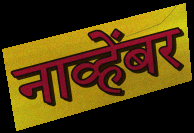
नाव्हेंबर